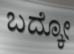
ಬದ್ಕೋ